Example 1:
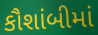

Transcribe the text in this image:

કૌશાંબીમાં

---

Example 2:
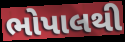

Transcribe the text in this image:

ભોપાલથી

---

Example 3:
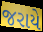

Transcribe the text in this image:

જરાયે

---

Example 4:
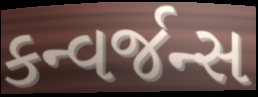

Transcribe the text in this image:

કન્વર્જન્સ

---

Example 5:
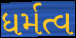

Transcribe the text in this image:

ધર્મત્વ